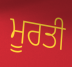
ਮੂਰਤੀ